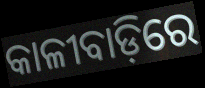
କାଳୀବାଡ଼ିରେ